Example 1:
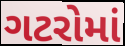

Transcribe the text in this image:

ગટરોમાં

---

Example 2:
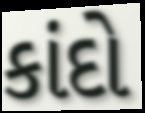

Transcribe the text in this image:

કાંદો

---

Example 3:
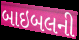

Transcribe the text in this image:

બાઇબલની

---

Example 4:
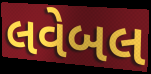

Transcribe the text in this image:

લવેબલ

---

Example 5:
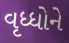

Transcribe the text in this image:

વૃધ્ધોને